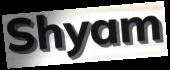
Shyam